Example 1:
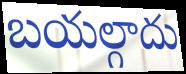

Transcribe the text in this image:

బయల్గాదు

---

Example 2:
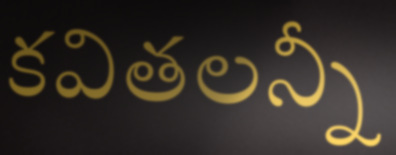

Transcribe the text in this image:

కవితలన్నీ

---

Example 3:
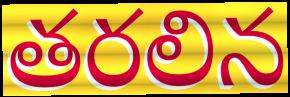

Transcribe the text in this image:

తరలిన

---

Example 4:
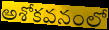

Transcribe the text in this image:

అశోకవనంలో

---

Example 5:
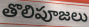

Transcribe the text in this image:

తొలిపూజలు